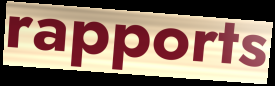
rapports